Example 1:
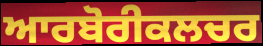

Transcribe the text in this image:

ਆਰਬੋਰੀਕਲਚਰ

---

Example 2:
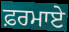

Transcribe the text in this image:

ਫ਼ਰਮਾਏ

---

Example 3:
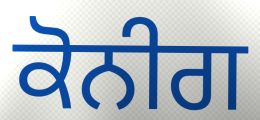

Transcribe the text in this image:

ਕੋਨੀਗ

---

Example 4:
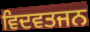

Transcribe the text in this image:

ਵਿਦਵਤਜਨ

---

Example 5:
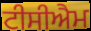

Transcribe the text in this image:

ਟੀਸੀਐਮ